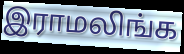
இராமலிங்க